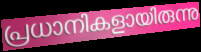
പ്രധാനികളായിരുന്നു